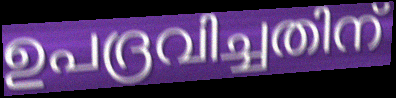
ഉപദ്രവിച്ചതിന്